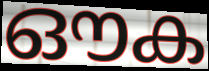
ഔക